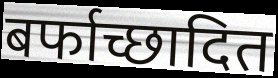
बर्फाच्छादित